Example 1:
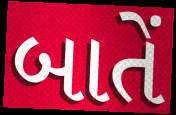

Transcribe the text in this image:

બાતેં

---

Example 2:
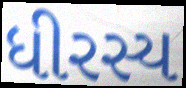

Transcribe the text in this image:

ધીરસ્ય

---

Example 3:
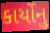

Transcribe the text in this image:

કાર્યોનુ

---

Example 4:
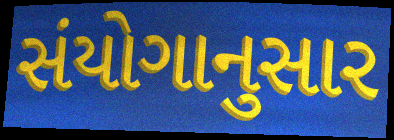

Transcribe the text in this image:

સંયોગાનુસાર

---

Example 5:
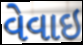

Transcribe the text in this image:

વેવાઇ